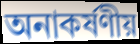
অনাকর্ষণীয়